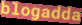
blogadda